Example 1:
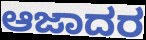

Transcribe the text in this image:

ಆಜಾದರ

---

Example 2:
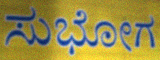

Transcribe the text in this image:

ಸುಭೋಗ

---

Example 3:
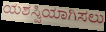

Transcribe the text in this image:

ಯಶಸ್ವಿಯಾಗಿಸಲು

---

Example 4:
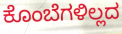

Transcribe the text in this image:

ಕೊಂಬೆಗಳಿಲ್ಲದ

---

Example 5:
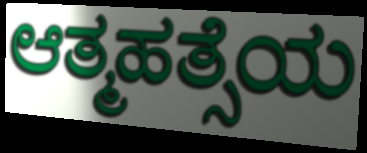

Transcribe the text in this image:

ಆತ್ಮಹತ್ಸೆಯ